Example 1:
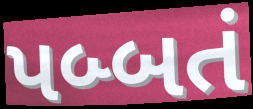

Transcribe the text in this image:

પબ્બતં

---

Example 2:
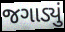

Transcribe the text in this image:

જગાડ્યું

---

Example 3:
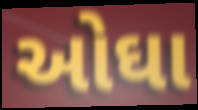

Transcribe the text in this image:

ઓઘા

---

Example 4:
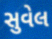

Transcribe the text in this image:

સુવેલ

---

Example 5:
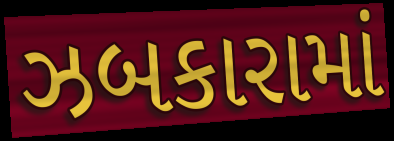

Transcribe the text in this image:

ઝબકારામાં